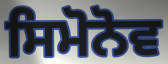
ਸਿਮੋਨੋਵ